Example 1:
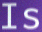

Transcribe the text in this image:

Is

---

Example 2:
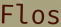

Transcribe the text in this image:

Flos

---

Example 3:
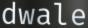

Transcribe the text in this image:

dwale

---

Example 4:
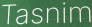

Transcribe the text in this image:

Tasnim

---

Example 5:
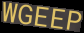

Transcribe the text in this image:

WGEEP